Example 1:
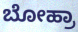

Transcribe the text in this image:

ಬೋಹ್ರಾ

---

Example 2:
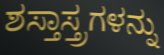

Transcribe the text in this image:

ಶಸ್ತಾಸ್ತ್ರಗಳನ್ನು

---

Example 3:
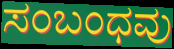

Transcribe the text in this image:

ಸಂಬಂಧವು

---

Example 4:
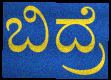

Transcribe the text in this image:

ಬಿದ್ರೆ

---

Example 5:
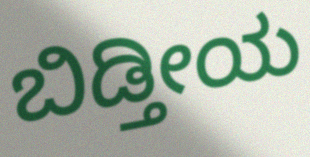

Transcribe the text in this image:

ಬಿಡ್ತೀಯ